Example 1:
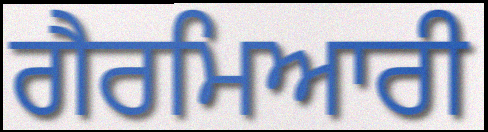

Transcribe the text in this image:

ਗੈਰਮਿਆਰੀ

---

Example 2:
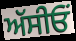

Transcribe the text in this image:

ਅੱਸੀਓਂ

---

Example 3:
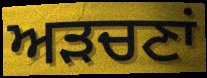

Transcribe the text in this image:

ਅੜਚਣਾਂ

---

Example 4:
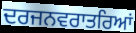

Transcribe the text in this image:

ਦਰਜਨਵਰਾਤਰਿਆਂ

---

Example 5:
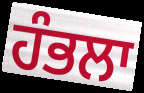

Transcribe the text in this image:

ਹੰਭਲਾ